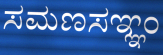
ಸಮಣಸಞ್ಞಂ